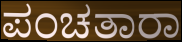
ಪಂಚತಾರಾ